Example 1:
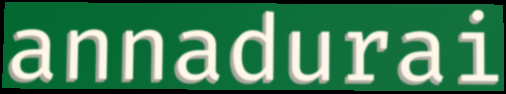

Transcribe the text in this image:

annadurai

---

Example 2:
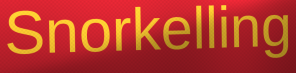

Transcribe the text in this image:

Snorkelling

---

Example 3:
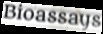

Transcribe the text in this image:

Bioassays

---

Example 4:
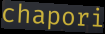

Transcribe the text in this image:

chapori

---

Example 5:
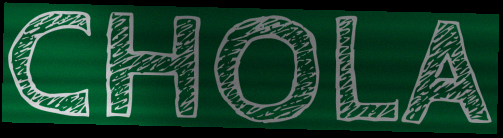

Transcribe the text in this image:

CHOLA